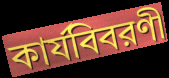
কার্যবিবরণী